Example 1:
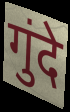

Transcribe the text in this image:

गुंदे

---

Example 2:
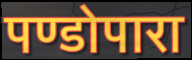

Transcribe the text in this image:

पण्डोपारा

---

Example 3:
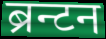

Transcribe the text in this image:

ब्रन्टन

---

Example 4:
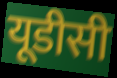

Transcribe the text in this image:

यूडीसी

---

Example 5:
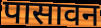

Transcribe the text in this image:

पासावन